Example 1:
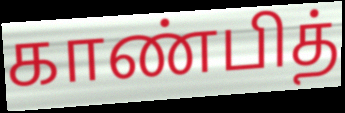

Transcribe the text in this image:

காண்பித்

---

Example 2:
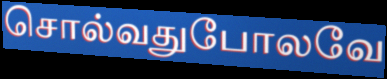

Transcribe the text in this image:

சொல்வதுபோலவே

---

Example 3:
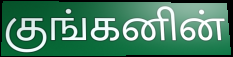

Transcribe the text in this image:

குங்கனின்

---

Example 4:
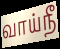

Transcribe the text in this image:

வாய்நீ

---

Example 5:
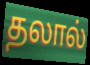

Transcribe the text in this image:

தலால்